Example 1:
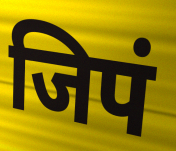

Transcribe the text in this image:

जिपं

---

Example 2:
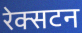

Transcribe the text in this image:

रेक्सटन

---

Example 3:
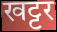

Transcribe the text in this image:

खट्टर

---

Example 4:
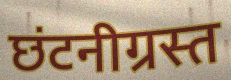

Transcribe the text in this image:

छंटनीग्रस्त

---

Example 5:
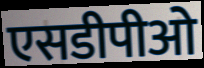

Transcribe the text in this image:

एसडीपीओ